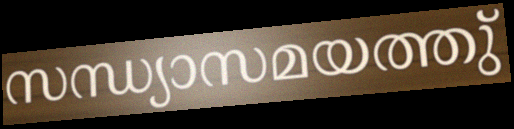
സന്ധ്യാസമയത്തു്